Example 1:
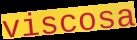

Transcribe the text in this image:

viscosa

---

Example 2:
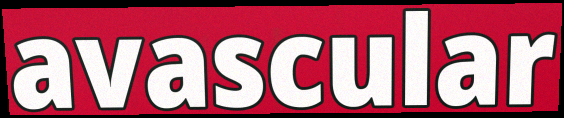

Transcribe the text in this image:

avascular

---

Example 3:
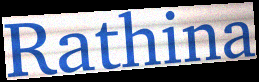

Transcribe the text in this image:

Rathina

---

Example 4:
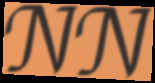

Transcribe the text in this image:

NN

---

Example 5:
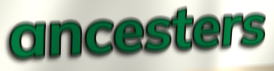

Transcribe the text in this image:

ancesters